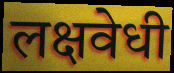
लक्षवेधी